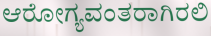
ಆರೋಗ್ಯವಂತರಾಗಿರಲಿ